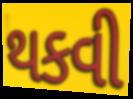
થકવી